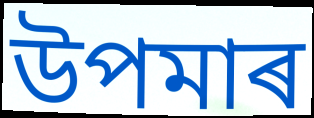
উপমাৰ